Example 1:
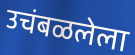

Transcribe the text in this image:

उचंबळलेला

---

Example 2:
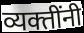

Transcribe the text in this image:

व्यक्‍तींनी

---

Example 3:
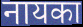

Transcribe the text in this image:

नायका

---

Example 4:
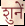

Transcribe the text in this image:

शुनें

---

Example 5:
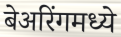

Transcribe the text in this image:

बेअरिंगमध्ये